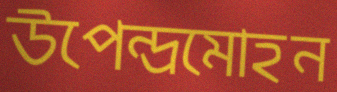
উপেন্দ্রমোহন